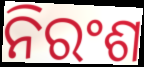
ନିରଂଶ